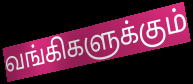
வங்கிகளுக்கும்